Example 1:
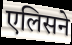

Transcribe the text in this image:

एलिसने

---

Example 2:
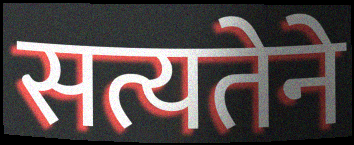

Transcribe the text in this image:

सत्यतेने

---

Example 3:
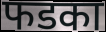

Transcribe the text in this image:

फडका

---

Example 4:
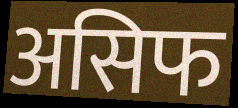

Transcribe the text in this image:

असिफ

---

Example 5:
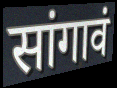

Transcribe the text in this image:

सांगावं